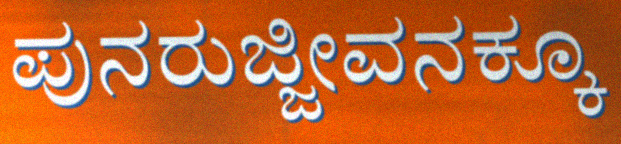
ಪುನರುಜ್ಜೀವನಕ್ಕೂ